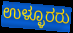
ಉಳ್ಳೂರರು